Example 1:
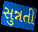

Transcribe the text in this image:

સુન્નતી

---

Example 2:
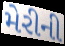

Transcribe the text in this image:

મેરીની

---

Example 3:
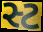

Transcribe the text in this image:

સ્ટ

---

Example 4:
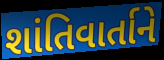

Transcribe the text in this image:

શાંતિવાર્તાને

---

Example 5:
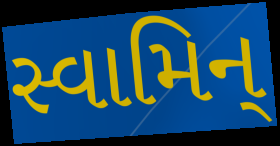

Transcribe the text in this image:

સ્વામિન્